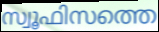
സ്വൂഫിസത്തെ